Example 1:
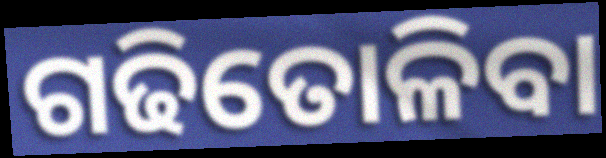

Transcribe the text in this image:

ଗଢିତୋଳିବା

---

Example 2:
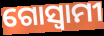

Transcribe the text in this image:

ଗୋସ୍ୱାମୀ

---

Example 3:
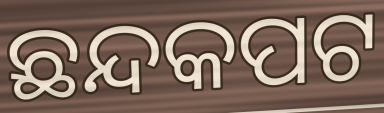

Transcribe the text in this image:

ଛନ୍ଦକପଟ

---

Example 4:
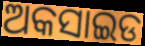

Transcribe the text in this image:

ଅକସାଇଡ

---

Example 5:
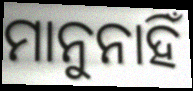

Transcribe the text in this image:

ମାନୁନାହିଁ